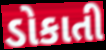
ડોકાતી